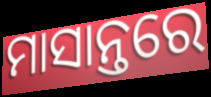
ମାସାନ୍ତରେ